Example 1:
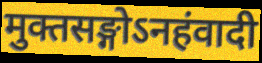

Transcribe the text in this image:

मुक्तसङ्गोऽनहंवादी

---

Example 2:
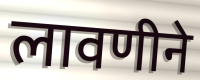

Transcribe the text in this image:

लावणीने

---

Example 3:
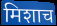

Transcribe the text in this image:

मिशाच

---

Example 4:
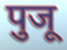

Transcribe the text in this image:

पुजू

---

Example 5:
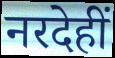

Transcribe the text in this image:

नरदेहीं